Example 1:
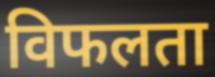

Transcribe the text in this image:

विफलता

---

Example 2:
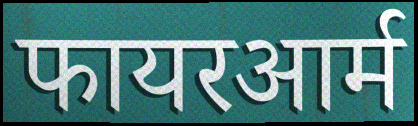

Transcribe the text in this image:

फायरआर्म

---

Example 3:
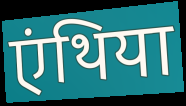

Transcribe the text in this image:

एंथिया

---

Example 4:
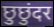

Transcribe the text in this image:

छुछुंदर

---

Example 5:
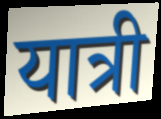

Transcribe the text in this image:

यात्री